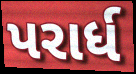
પરાર્ધ